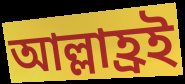
আল্লাহ্রই